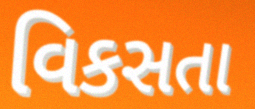
વિકસતા